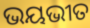
ଭୟଭୀତ